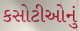
કસોટીઓનું